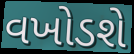
વખોડશે